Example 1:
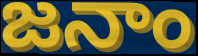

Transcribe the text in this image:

జనాం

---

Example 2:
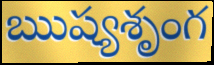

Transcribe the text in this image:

ఋష్యశృంగ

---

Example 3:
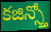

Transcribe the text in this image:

కజిన్స్తో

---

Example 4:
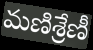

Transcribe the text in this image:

మణిశ్రేణీ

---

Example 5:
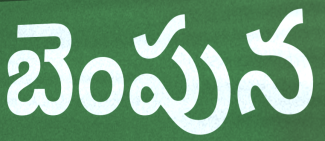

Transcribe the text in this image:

బెంపున